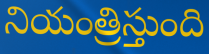
నియంత్రిస్తుంది